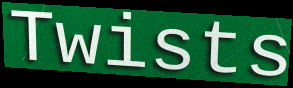
Twists